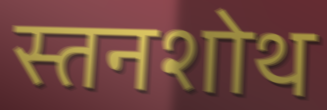
स्तनशोथ